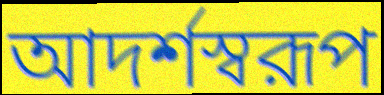
আদর্শস্বরূপ